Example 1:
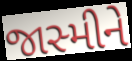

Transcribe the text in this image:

જાસ્મીને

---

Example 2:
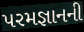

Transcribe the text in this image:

પરમજ્ઞાનની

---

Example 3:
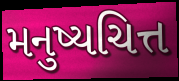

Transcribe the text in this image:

મનુષ્યચિત્ત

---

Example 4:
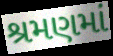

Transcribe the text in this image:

શ્રમણમાં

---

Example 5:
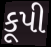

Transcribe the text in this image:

કૂપી